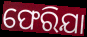
ଫେରିଯା